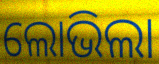
ଲୋଭିଲା